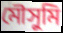
মৌসুমি